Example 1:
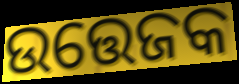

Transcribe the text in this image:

ଉତ୍ତେଜକ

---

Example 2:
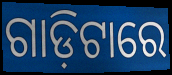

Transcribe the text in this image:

ଗାଡ଼ିଟାରେ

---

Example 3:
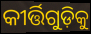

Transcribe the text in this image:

କୀର୍ତ୍ତିଗୁଡ଼ିକୁ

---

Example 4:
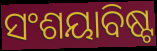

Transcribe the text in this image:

ସଂଶୟାବିଷ୍ଟ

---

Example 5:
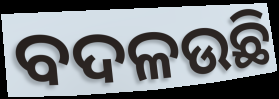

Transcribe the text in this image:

ବଦଳଉଛି